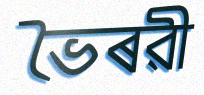
ভৈৰৱী